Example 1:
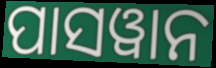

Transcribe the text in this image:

ପାସୱାନ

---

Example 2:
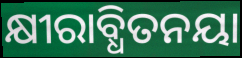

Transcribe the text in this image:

କ୍ଷୀରାବ୍ଧିତନୟା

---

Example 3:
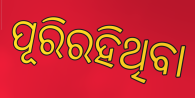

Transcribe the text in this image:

ପୂରିରହିଥିବା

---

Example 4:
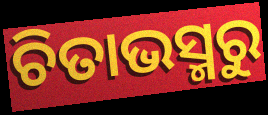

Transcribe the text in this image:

ଚିତାଭସ୍ମରୁ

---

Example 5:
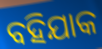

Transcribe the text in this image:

ବହିଯାକ